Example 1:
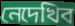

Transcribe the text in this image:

নেদেখিব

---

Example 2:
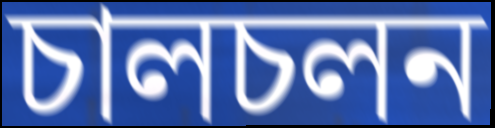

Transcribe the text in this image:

চালচলন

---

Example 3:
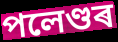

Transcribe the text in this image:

পলেণ্ডৰ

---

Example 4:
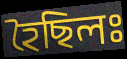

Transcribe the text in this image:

হৈছিলঃ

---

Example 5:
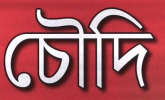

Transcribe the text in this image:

চৌদি